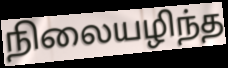
நிலையழிந்த